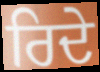
ਰਿਦੇ